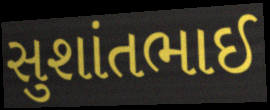
સુશાંતભાઈ